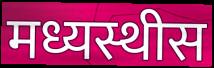
मध्यस्थीस